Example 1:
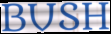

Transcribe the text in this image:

BUSH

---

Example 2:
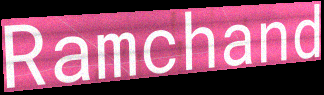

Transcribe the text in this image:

Ramchand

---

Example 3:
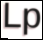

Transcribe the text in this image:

Lp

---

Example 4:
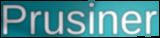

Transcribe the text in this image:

Prusiner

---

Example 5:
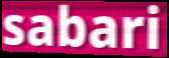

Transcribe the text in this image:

sabari